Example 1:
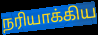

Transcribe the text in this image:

நரியாக்கிய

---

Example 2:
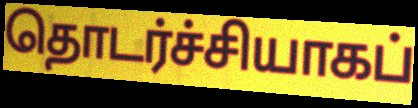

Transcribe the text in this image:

தொடர்ச்சியாகப்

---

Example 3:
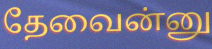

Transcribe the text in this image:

தேவைன்னு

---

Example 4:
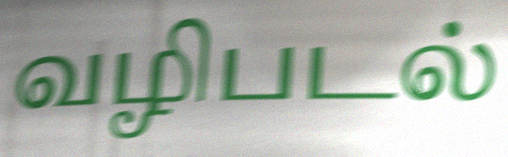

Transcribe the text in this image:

வழிபடல்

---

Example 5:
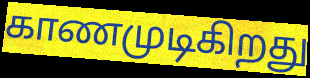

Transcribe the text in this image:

காணமுடிகிறது